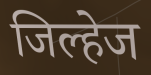
जिल्हेज